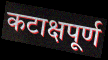
कटाक्षपूर्ण